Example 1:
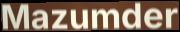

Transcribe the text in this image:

Mazumder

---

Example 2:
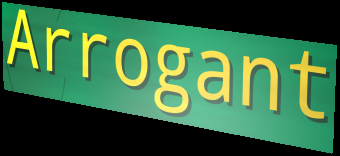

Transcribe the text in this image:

Arrogant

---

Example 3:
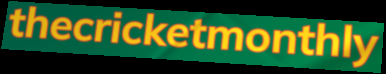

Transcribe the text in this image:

thecricketmonthly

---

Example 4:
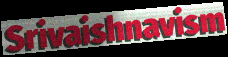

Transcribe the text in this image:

Srivaishnavism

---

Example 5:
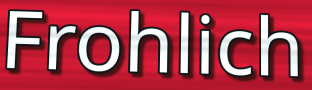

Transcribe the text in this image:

Frohlich